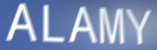
ALAMY